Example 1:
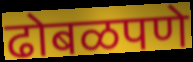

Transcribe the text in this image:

ढोबळपणे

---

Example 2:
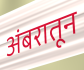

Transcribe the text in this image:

अंबरातून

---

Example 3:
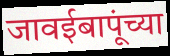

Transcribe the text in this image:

जावईबापूंच्या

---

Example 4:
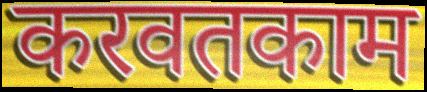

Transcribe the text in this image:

करवतकाम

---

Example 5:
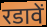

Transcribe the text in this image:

रडावें